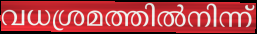
വധശ്രമത്തിൽനിന്ന്